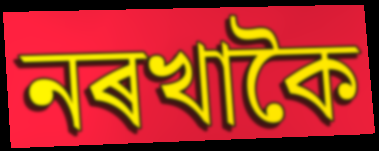
নৰখাকৈ